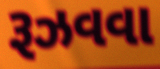
રૂઝવવા